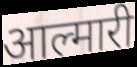
आल्मारी